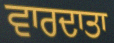
ਵਾਰਦਾਤਾ